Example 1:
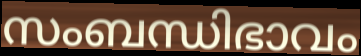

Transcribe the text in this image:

സംബന്ധിഭാവം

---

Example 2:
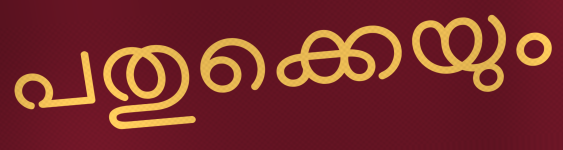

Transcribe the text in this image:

പതുക്കെയും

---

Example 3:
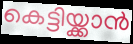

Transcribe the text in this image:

കെട്ടിയ്ക്കാൻ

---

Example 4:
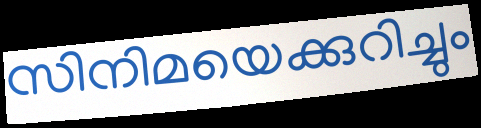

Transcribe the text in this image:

സിനിമയെക്കുറിച്ചും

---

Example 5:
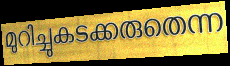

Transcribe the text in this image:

മുറിച്ചുകടക്കരുതെന്ന